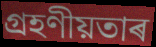
গ্ৰহণীয়তাৰ